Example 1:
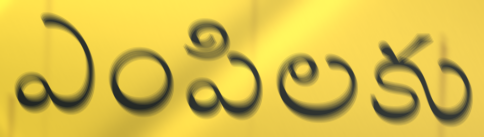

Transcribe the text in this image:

ఎంపిలకు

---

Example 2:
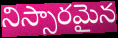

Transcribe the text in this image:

నిస్సారమైన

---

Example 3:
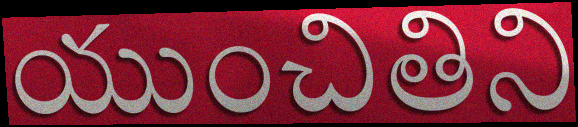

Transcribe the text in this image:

యుంచితిని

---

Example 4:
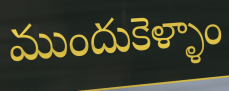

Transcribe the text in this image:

ముందుకెళ్ళాం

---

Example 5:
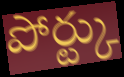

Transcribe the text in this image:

పోర్ట్కు